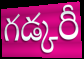
గడ్కరీ